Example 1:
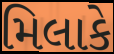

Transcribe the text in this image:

મિલાકે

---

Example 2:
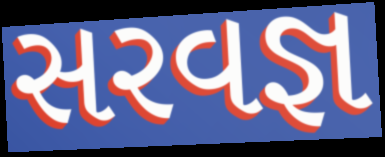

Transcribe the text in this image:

સરવજ્ઞ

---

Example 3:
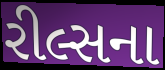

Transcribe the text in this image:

રીલ્સના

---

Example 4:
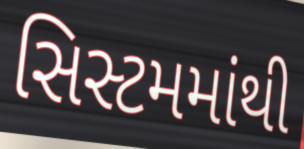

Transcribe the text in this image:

સિસ્ટમમાંથી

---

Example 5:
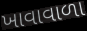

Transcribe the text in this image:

ખાવાવાળા